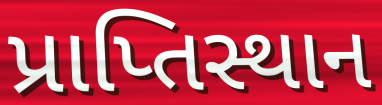
પ્રાપ્તિસ્થાન